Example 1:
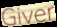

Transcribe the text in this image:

Giver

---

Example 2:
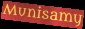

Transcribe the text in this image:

Munisamy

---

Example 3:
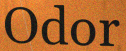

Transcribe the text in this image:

Odor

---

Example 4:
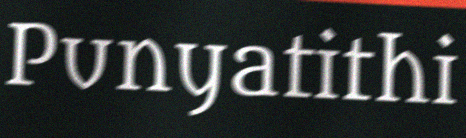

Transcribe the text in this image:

Punyatithi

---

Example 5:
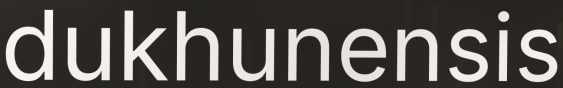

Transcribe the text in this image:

dukhunensis